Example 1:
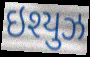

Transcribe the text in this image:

ઇશ્યુઝ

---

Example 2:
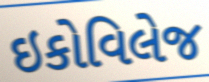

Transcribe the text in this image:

ઇકોવિલેજ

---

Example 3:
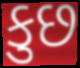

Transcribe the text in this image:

કુછ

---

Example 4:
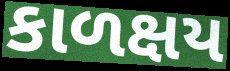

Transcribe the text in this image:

કાળક્ષય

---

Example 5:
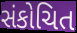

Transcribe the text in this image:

સંકોચિત